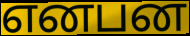
எனபன